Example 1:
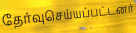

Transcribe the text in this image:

தேர்வுசெய்யப்பட்டனர்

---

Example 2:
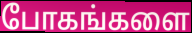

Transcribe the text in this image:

போகங்களை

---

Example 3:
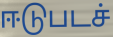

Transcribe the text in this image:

ஈடுபடச்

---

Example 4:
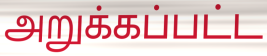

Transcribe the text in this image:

அறுக்கப்பட்ட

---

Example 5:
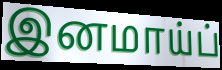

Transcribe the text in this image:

இனமாய்ப்